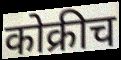
कोक्रीच